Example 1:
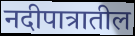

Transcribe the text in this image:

नदीपात्रातील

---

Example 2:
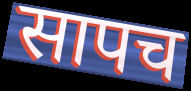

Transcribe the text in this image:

सापच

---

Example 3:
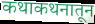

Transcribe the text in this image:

कथाकथनातून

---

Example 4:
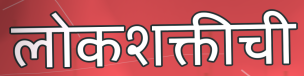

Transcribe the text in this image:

लोकशक्तीची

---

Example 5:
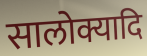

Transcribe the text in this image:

सालोक्यादि